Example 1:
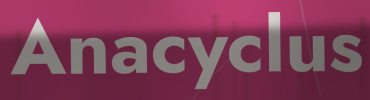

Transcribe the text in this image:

Anacyclus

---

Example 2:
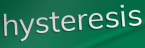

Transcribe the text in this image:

hysteresis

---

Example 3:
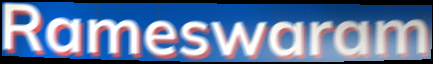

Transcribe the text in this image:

Rameswaram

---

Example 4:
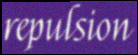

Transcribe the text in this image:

repulsion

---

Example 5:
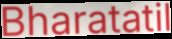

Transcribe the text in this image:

Bharatatil